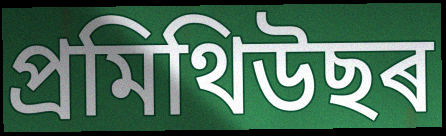
প্ৰমিথিউছৰ